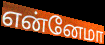
என்னேமா